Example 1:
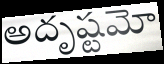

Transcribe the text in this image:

అదృష్టమో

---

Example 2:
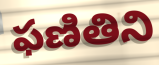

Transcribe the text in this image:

ఫణితిని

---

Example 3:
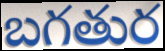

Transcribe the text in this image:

బగతుర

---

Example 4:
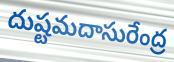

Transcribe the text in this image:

దుష్టమదాసురేంద్ర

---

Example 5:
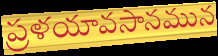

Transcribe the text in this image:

ప్రళయావసానమున